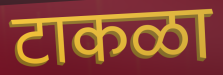
टाकळा